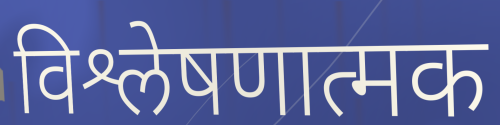
विश्लेषणात्मक